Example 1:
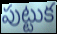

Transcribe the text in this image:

పుట్టుక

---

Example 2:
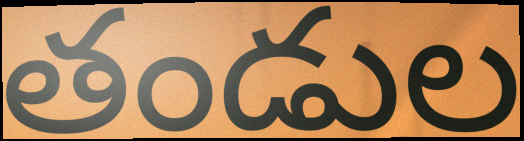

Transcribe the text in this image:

తండుల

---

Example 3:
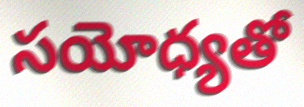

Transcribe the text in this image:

సయోధ్యతో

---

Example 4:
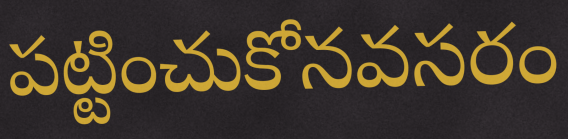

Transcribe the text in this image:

పట్టించుకోనవసరం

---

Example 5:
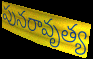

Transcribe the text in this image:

పునరావృత్య